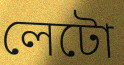
লেটো